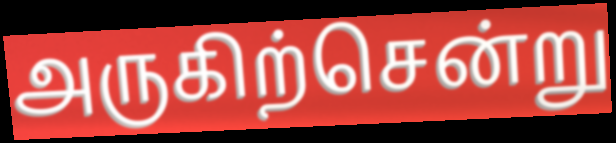
அருகிற்சென்று